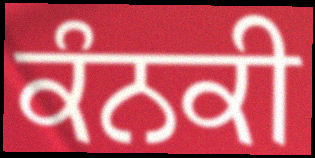
ਕੰਨਕੀ